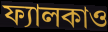
ফ্যালকাও